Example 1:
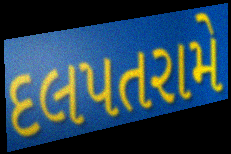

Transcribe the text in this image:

દલપતરામે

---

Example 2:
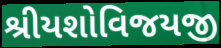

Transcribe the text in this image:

શ્રીયશોવિજયજી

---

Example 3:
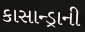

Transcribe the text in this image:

કાસાન્ડ્રાની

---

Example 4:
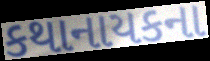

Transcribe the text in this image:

કથાનાયકના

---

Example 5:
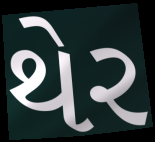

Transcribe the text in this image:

થેર